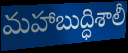
మహాబుద్ధిశాలీ